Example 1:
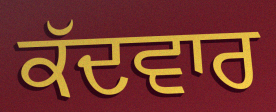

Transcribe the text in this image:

ਕੱਦਵਾਰ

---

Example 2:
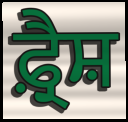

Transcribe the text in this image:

ਫ਼੍ਰੈਸ਼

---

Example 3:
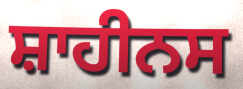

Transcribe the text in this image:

ਸ਼ਾਹੀਨਸ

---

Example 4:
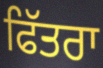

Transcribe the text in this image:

ਫਿੱਤਰਾ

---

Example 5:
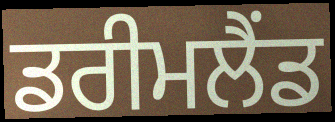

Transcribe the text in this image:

ਡਰੀਮਲੈਂਡ